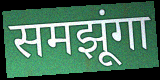
समझूंगा